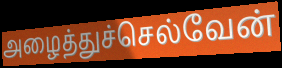
அழைத்துச்செல்வேன்